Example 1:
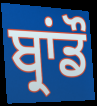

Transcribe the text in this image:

ਬ੍ਰਾਂਡੌ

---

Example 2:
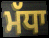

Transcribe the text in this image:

ਮੱਧਾ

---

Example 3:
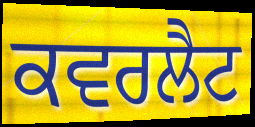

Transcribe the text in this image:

ਕਵਰਲੈਟ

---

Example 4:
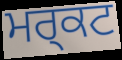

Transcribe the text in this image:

ਮਰ੍ਕਟ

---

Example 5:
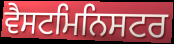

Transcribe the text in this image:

ਵੈਸਟਮਿਨਿਸਟਰ